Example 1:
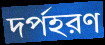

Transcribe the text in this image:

দর্পহরণ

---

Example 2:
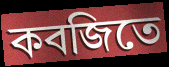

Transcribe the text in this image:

কবজিতে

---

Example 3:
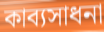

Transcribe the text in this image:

কাব্যসাধনা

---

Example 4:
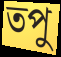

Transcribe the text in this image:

তপু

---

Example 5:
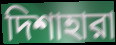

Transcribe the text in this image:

দিশাহারা